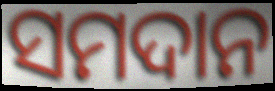
ସମଦାନ